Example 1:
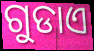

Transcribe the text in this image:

ଗୁଡାଏ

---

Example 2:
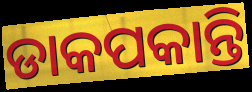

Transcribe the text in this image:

ଡାକପକାନ୍ତି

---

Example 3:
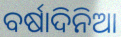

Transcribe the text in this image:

ବର୍ଷାଦିନିଆ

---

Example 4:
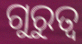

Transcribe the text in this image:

ଗୁରୁତ୍ୱ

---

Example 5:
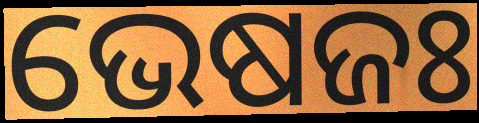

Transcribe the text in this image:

ଭେଷଜଃ